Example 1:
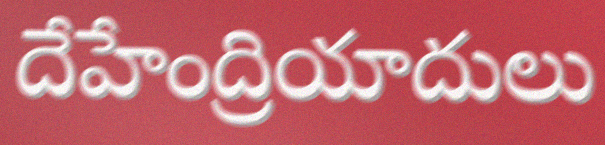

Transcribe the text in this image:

దేహేంద్రియాదులు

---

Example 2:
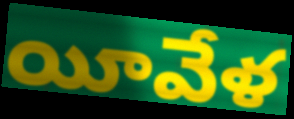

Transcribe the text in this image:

యీవేళ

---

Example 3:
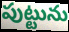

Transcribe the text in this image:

పుట్టును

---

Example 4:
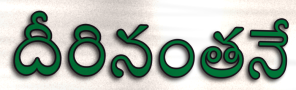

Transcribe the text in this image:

దీరినంతనే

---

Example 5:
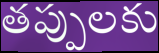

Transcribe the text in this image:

తప్పులకు